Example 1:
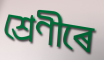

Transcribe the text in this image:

শ্ৰেণীৰে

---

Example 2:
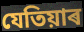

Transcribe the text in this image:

যেতিয়াৰ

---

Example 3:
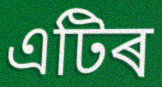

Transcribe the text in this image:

এটিৰ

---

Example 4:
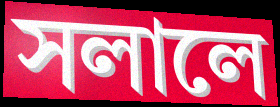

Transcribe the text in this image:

সলালে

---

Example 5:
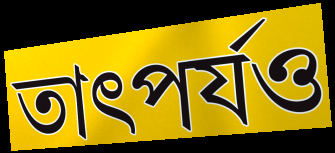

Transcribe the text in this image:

তাৎপৰ্যও